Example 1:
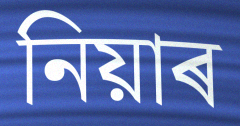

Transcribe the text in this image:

নিয়াৰ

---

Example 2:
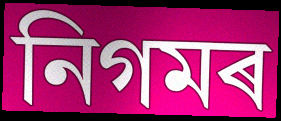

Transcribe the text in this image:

নিগমৰ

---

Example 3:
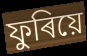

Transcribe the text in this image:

ফুৰিয়ে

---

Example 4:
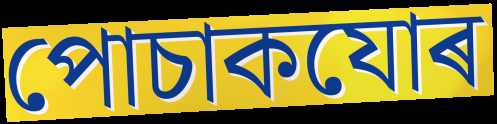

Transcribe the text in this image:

পোচাকযোৰ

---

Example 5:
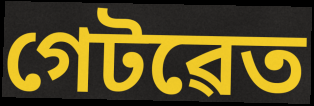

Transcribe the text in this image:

গেটৱেত